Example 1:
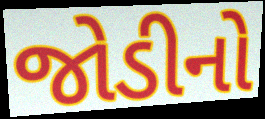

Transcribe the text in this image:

જોડીનો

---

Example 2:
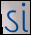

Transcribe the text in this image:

ડાં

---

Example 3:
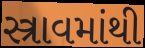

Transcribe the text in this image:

સ્ત્રાવમાંથી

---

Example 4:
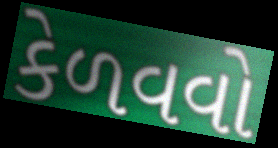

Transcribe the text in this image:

કેળવવો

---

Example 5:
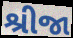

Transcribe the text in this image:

શ્રીજા